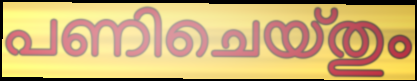
പണിചെയ്തും